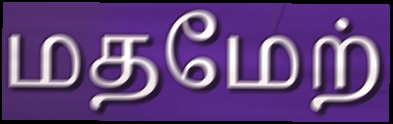
மதமேற்